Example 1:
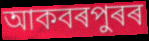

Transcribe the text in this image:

আকবৰপুৰৰ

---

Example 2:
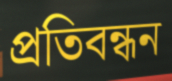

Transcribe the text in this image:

প্ৰতিবন্ধন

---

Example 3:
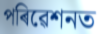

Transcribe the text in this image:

পৰিৱেশনত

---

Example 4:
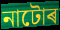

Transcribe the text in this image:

নাটোৰ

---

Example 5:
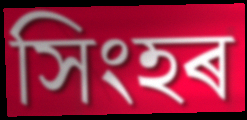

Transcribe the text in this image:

সিংহৰ